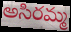
అసిరమ్మ